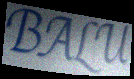
BALU